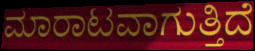
ಮಾರಾಟವಾಗುತ್ತಿದೆ